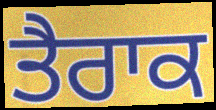
ਤੈਰਾਕ